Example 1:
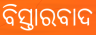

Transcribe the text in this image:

ବିସ୍ତାରବାଦ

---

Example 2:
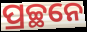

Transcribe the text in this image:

ପ୍ରଚ୍ଛନେ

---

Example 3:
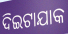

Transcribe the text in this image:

ଦିଇଟାଯାକ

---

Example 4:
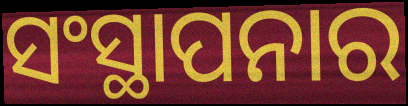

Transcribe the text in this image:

ସଂସ୍ଥାପନାର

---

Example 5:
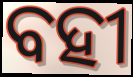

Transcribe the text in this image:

ବହୀ